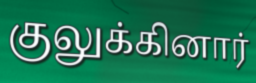
குலுக்கினார்